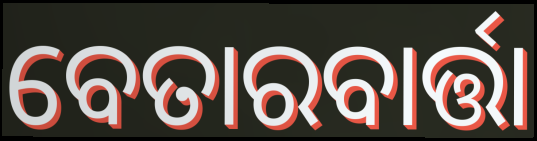
ବେତାରବାର୍ତ୍ତା